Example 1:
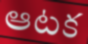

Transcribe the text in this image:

ఆటక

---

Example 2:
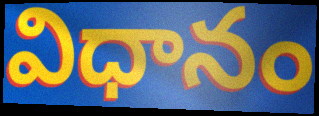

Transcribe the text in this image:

విధానం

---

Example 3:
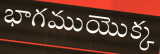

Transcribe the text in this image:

భాగముయొక్క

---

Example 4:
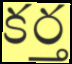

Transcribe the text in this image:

కర్త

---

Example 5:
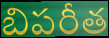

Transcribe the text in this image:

బిపరీత